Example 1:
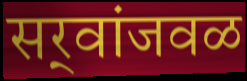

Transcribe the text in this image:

सर्वांजवळ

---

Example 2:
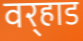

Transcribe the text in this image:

वर्‍हाड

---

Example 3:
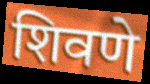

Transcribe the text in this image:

शिवणे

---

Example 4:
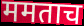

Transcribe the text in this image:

ममताच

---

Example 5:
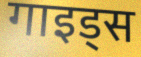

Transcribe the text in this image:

गाइड्स